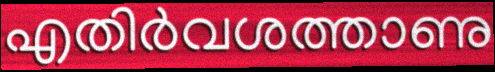
എതിർവശത്താണു